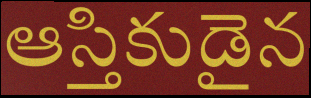
ఆస్తికుడైన